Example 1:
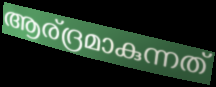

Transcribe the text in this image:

ആര്ദ്രമാകുന്നത്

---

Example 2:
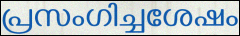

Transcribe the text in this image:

പ്രസംഗിച്ചശേഷം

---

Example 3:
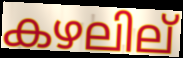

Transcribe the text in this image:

കഴലില്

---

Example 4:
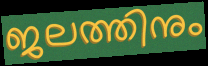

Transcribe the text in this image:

ജലത്തിനും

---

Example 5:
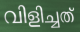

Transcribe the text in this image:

വിളിച്ചത്